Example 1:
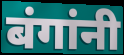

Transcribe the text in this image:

बंगांनी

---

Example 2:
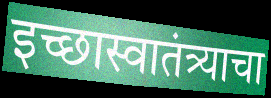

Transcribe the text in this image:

इच्छास्वातंत्र्याचा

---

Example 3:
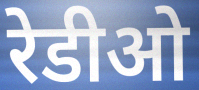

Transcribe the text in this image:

रेडीओ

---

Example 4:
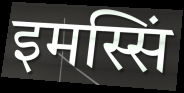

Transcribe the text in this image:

इमस्सिं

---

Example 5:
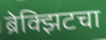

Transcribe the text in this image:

ब्रेक्झिटचा